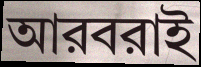
আরবরাই